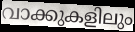
വാക്കുകളിലും